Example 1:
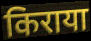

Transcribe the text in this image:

किराया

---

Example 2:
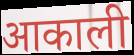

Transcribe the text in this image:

आकाली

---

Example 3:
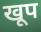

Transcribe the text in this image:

खूप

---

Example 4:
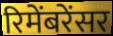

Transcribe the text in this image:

रिमेंबरेंसर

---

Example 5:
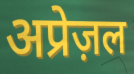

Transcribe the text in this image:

अप्रेज़ल